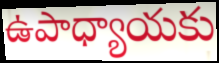
ఉపాధ్యాయకు